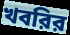
খবরির